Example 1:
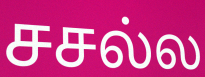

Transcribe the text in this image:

சசல்ல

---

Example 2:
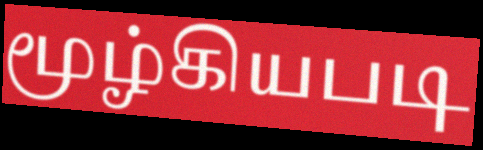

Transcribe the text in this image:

மூழ்கியபடி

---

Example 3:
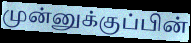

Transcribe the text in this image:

முன்னுக்குப்பின்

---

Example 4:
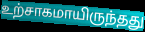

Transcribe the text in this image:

உற்சாகமாயிருந்தது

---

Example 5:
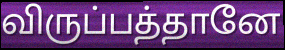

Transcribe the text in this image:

விருப்பத்தானே